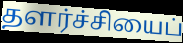
தளர்ச்சியைப்